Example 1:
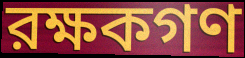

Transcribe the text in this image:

রক্ষকগণ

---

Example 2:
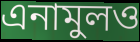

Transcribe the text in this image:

এনামুলও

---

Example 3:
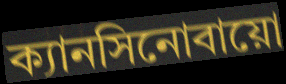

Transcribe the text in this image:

ক্যানসিনোবায়ো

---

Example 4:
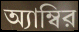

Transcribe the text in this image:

অ্যাম্বির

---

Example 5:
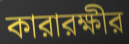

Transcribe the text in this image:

কারারক্ষীর